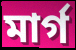
মাৰ্গ